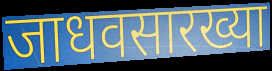
जाधवसारख्या